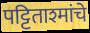
पट्टिताश्मांचे